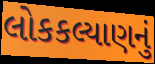
લોકકલ્યાણનું